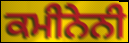
ਕਮੀਨੇਨੀ